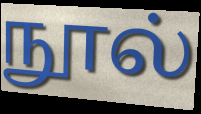
நூல்